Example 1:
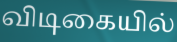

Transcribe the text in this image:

விடிகையில்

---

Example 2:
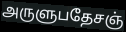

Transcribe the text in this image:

அருளுபதேசஞ்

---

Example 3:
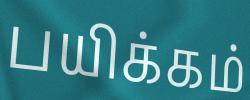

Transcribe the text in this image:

பயிக்கம்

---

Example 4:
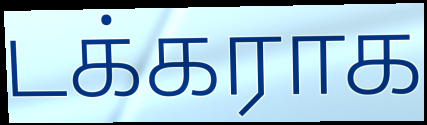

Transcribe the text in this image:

டக்கராக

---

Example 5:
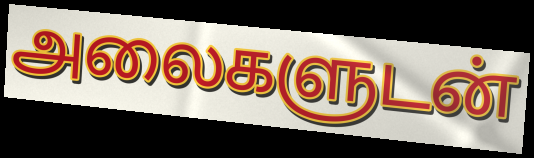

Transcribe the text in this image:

அலைகளுடன்